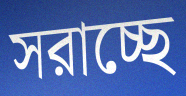
সরাচ্ছে